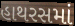
હાથરસમાં